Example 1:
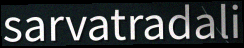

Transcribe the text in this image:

sarvatradali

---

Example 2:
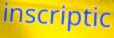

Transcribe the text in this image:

inscriptic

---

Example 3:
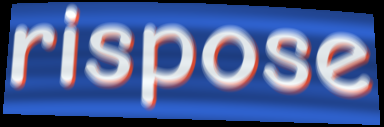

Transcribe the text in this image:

rispose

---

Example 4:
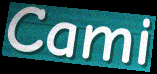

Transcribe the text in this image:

Cami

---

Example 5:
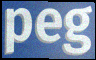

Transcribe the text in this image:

peg